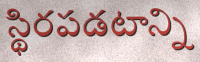
స్థిరపడటాన్ని